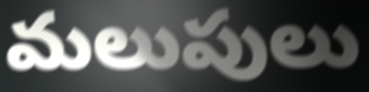
మలుపులు